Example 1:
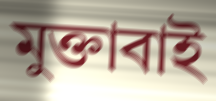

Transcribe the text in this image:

মুক্তাবাই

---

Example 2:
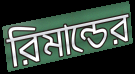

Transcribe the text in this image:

রিমান্ডের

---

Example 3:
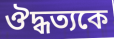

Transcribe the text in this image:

ঔদ্ধত্যকে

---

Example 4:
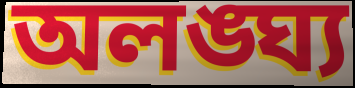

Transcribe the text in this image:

অলঙ্ঘ্য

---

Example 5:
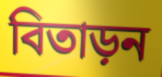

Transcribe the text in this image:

বিতাড়ন